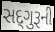
સદ્‌ગુરૂની